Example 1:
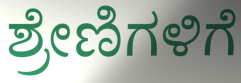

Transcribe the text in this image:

ಶ್ರೇಣಿಗಳಿಗೆ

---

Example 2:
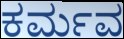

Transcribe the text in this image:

ಕರ್ಮವ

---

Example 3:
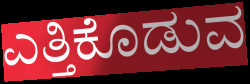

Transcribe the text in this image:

ಎತ್ತಿಕೊಡುವ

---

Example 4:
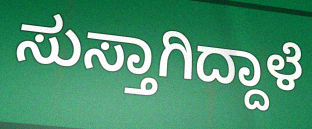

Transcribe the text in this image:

ಸುಸ್ತಾಗಿದ್ದಾಳೆ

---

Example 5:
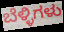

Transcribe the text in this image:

ಬೆಳ್ಳಿಗಳು